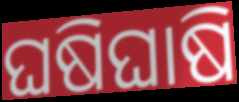
ଘଷିଘାଷି